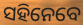
ସହିନେବେ